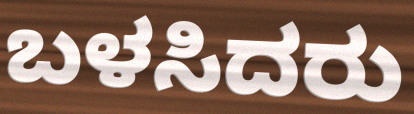
ಬಳಸಿದರು